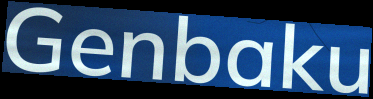
Genbaku